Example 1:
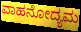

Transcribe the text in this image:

ವಾಹನೋದ್ಯಮ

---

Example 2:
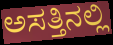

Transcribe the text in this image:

ಅಸತ್ತಿನಲ್ಲಿ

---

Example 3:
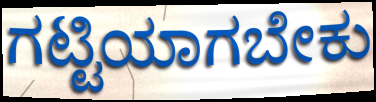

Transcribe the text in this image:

ಗಟ್ಟಿಯಾಗಬೇಕು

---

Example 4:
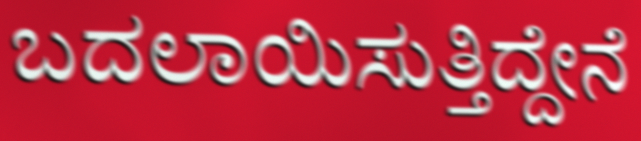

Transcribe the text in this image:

ಬದಲಾಯಿಸುತ್ತಿದ್ದೇನೆ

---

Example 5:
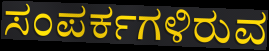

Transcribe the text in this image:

ಸಂಪರ್ಕಗಳಿರುವ